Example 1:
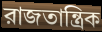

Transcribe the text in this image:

রাজতান্ত্রিক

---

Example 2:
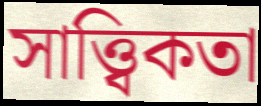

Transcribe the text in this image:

সাত্ত্বিকতা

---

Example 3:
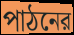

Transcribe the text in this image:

পাঠনের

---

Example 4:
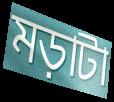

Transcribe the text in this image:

মড়াটা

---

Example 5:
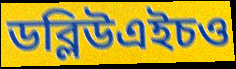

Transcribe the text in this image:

ডব্লিউএইচও